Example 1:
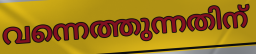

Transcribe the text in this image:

വന്നെത്തുന്നതിന്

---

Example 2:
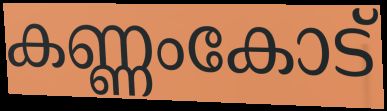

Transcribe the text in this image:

കണ്ണംകോട്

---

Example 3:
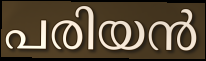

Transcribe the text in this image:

പരിയൻ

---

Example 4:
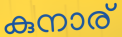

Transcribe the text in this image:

കുനാര്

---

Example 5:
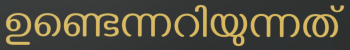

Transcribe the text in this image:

ഉണ്ടെന്നറിയുന്നത്